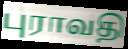
புராவதி